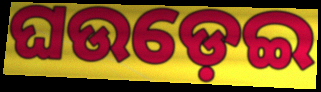
ଘଉଡ଼େଇ